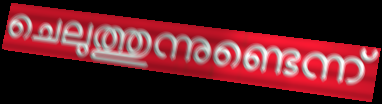
ചെലുത്തുന്നുണ്ടെന്ന്